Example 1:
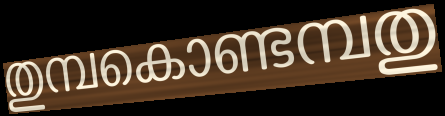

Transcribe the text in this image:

തുമ്പകൊണ്ടമ്പതു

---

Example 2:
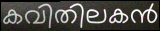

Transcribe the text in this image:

കവിതിലകൻ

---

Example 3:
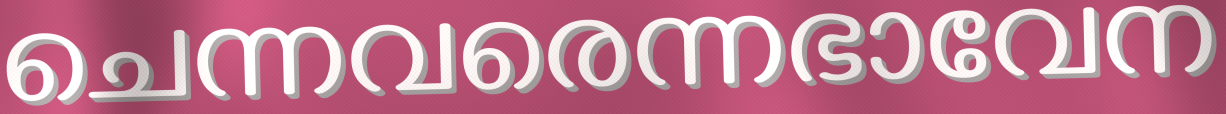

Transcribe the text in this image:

ചെന്നവരെന്നഭാവേന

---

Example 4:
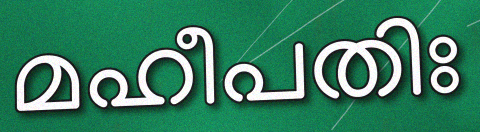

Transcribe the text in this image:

മഹീപതിഃ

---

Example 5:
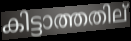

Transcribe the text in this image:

കിട്ടാത്തതില്